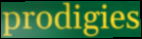
prodigies